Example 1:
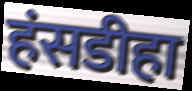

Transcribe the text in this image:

हंसडीहा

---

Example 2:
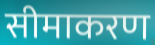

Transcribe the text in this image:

सीमाकरण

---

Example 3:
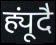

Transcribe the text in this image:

ह्यूंदै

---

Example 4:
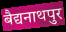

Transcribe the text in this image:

बैद्यनाथपुर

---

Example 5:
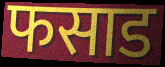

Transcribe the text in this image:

फसाड